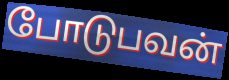
போடுபவன்